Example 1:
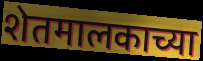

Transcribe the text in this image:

शेतमालकाच्या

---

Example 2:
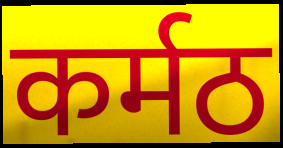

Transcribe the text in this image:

कर्मठ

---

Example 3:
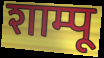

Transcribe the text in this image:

शाम्पू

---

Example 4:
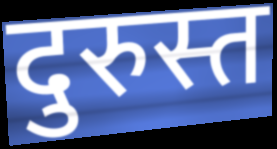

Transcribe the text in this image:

दुरुस्त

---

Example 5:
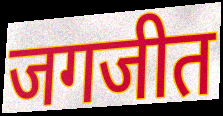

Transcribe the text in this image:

जगजीत